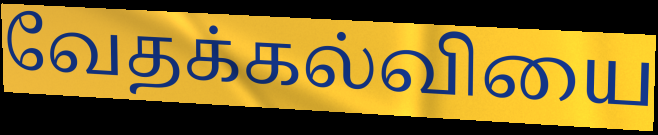
வேதக்கல்வியை